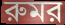
রুমর